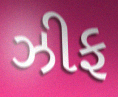
ઝીફ